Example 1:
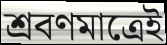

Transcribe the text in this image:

শ্রবণমাত্রেই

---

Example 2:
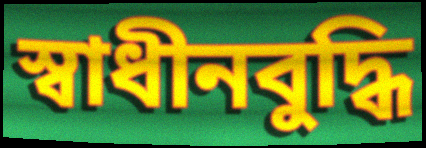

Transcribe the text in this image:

স্বাধীনবুদ্ধি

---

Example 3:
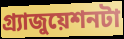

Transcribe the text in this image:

গ্র্যাজুয়েশনটা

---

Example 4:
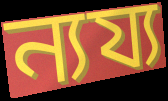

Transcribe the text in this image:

ন্যয্য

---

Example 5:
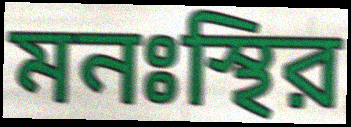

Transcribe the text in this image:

মনঃস্থির